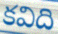
కవిది